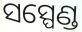
ସସ୍ପେଣ୍ଡ